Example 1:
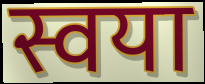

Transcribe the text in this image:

स्वया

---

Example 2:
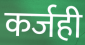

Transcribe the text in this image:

कर्जही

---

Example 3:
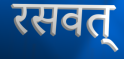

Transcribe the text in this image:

रसवत्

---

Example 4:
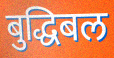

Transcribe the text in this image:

बुद्धिबल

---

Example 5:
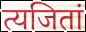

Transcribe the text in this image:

त्यजितां